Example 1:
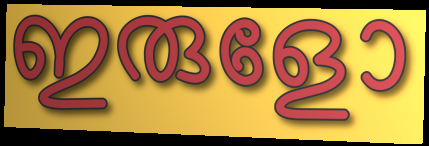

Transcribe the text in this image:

ഇരുളോ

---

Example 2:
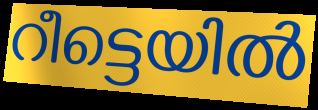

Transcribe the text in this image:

റീട്ടെയിൽ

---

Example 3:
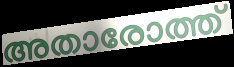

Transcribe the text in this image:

അതാരോത്ത്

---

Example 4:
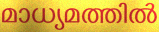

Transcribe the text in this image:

മാധ്യമത്തിൽ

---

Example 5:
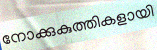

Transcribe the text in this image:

നോക്കുകുത്തികളായി